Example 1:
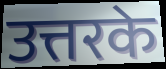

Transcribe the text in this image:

उत्तरके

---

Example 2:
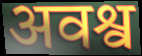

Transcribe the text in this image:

अवश्व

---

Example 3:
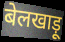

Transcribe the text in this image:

बेलखाड़ू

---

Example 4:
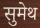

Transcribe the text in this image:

सुमेथ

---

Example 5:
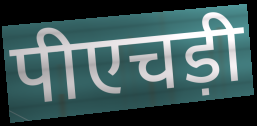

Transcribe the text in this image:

पीएचड़ी